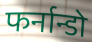
फर्नान्डो